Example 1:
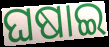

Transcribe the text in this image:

ଘଷାଇ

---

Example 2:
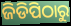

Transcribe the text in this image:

ଜିଡିପିଠାରୁ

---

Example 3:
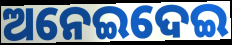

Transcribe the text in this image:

ଅନେଇଦେଇ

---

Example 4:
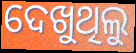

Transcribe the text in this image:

ଦେଖୁଥିଲୁ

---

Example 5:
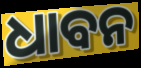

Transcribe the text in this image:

ଧାବନ